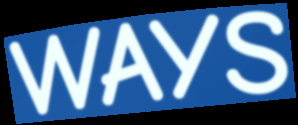
WAYS